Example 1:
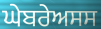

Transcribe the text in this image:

ਘੇਬਰੇਅਸਸ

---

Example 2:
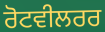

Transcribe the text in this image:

ਰੋਟਵੀਲਰਰ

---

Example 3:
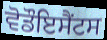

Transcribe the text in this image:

ਵੋਡੌਇਸੈਂਟਸ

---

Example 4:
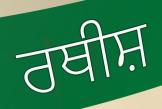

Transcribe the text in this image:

ਰਥੀਸ਼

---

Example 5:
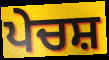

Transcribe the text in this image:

ਪੇਚਸ਼